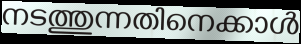
നടത്തുന്നതിനെക്കാൾ